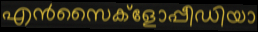
എൻസൈക്ളോപ്പീഡിയാ